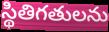
స్థితిగతులను